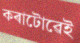
কৰাটোৱেই